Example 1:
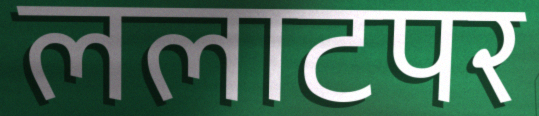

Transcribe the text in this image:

ललाटपर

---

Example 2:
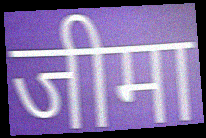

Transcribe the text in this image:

जीमा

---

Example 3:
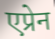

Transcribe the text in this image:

एप्रेन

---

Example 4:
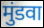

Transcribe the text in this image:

मुंडवा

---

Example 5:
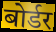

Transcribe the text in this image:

बोर्डर